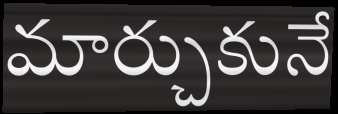
మార్చుకునే